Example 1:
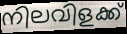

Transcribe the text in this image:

നിലവിളക്ക്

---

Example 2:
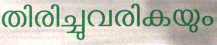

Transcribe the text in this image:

തിരിച്ചുവരികയും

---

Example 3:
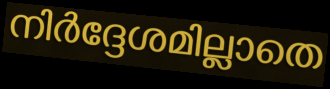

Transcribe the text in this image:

നിർദ്ദേശമില്ലാതെ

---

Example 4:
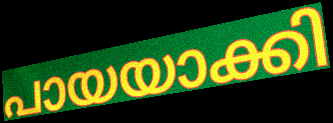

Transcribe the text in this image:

പായയാക്കി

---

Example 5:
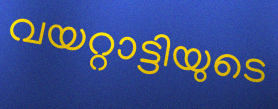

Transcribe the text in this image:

വയറ്റാട്ടിയുടെ